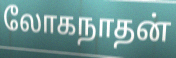
லோகநாதன்